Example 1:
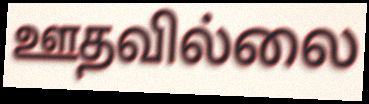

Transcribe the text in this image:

ஊதவில்லை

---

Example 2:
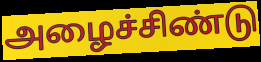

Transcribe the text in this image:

அழைச்சிண்டு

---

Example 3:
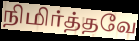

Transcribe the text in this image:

நிமிர்த்தவே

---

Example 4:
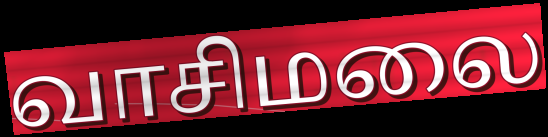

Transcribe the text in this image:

வாசிமலை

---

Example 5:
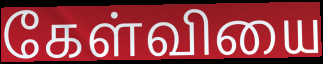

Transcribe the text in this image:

கேள்வியை